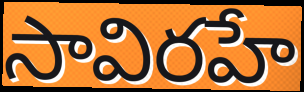
సావిరహే